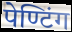
पेण्टिंग